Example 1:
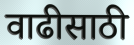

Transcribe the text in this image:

वाढीसाठी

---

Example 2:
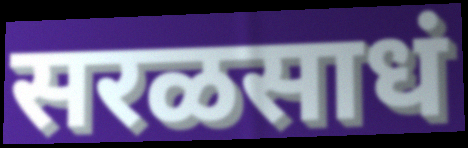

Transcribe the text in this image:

सरळसाधं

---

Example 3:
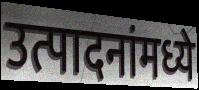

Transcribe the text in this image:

उत्पादनांमध्ये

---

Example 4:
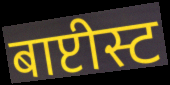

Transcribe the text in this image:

बाप्टीस्ट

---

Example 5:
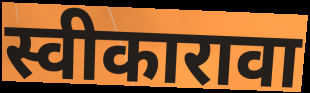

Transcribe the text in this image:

स्वीकारावा